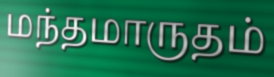
மந்தமாருதம்